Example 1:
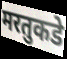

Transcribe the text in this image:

मरतुकडे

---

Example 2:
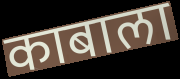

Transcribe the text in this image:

काबाला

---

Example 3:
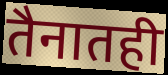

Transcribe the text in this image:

तैनातही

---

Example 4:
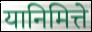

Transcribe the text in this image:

यानिमित्ते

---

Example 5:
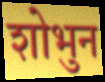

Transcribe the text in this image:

शोभुन